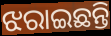
ଝରାଇଛନ୍ତି